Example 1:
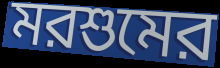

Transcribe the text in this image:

মরশুমের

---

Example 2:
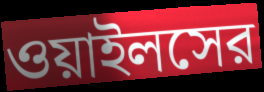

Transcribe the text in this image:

ওয়াইলসের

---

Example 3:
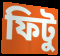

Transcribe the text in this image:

ফিটু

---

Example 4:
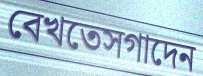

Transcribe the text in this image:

বেখতেসগাদেন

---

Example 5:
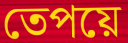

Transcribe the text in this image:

তেপয়ে